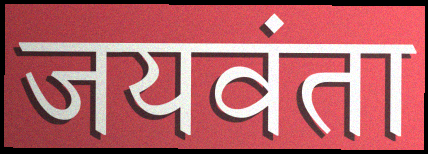
जयवंता